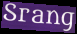
Srang